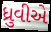
ધ્રુવીએ